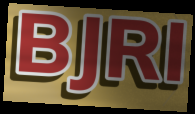
BJRI